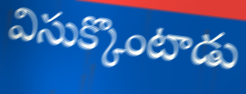
విసుక్కొంటాడు